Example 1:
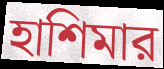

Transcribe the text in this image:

হাশিমার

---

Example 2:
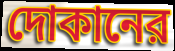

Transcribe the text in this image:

দোকানের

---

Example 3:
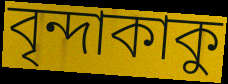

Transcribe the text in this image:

বৃন্দাকাকু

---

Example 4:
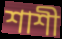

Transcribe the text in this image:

শাশী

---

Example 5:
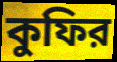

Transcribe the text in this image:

কুফির